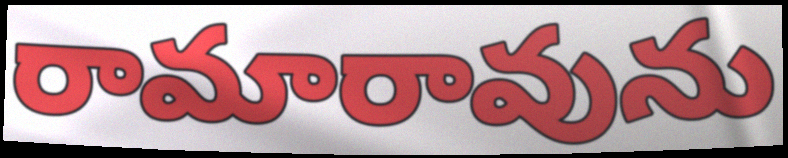
రామారావును